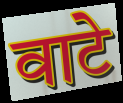
वाटे